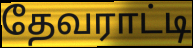
தேவராட்டி